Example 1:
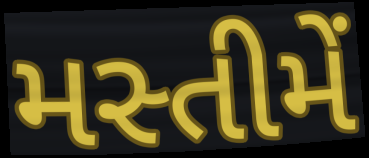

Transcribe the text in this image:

મસ્તીમેં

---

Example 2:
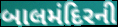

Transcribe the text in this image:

બાલમંદિરની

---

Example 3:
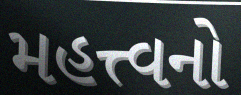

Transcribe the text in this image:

મહત્ત્વનો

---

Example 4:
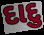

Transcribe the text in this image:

દાદુ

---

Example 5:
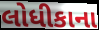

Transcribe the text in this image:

લોધીકાના